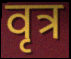
वृत्र